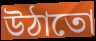
উঠাতো